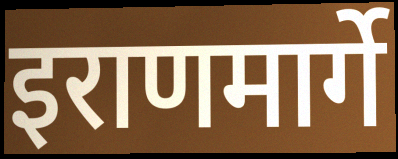
इराणमार्गे